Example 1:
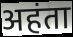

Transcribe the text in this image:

अहंता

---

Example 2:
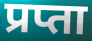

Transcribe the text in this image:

प्रप्ता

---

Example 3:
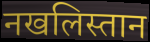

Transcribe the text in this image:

नखलिस्तान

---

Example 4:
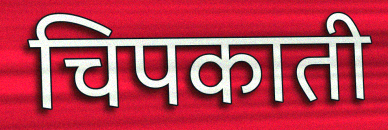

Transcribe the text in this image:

चिपकाती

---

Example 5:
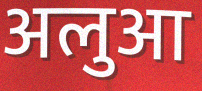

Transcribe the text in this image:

अलुआ